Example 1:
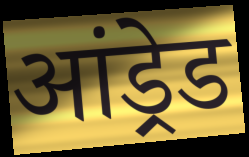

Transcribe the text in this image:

आंड्रेड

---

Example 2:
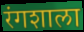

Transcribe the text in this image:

रंगशाला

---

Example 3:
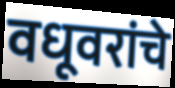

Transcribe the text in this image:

वधूवरांचे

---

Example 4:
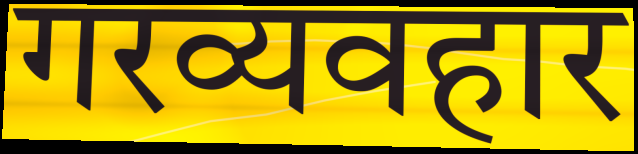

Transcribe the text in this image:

गरव्यवहार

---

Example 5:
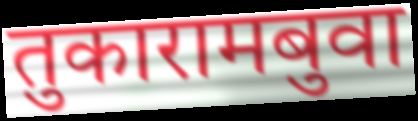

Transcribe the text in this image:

तुकारामबुवा